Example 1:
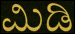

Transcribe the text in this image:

ಮಿಡಿ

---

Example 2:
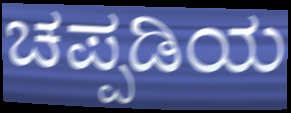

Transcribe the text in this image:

ಚಪ್ಪಡಿಯ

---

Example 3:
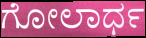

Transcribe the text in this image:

ಗೋಲಾರ್ಧ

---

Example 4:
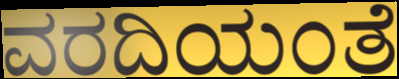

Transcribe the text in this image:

ವರದಿಯಂತೆ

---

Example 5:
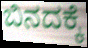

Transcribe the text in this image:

ಬಿನದಕ್ಕೆ